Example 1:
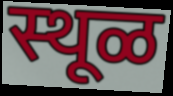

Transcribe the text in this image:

स्थूळ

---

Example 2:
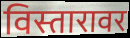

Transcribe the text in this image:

विस्तारावर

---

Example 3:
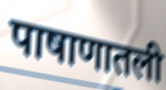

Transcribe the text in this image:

पाषाणातली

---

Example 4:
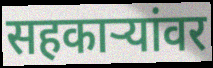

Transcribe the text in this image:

सहकार्‍यांवर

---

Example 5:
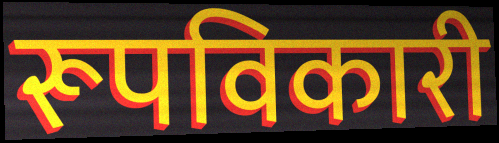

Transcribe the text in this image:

रूपविकारी